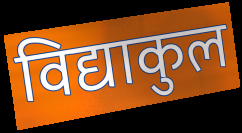
विद्याकुल